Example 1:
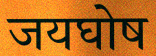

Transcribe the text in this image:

जयघोष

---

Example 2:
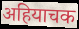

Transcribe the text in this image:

अहियाचक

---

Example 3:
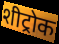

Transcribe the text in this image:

शीट्रोक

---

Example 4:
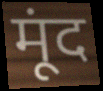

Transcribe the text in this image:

मूंद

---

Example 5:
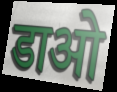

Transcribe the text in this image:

डाओ